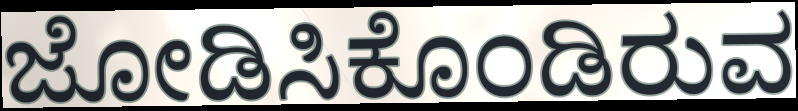
ಜೋಡಿಸಿಕೊಂಡಿರುವ